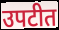
उपटीत